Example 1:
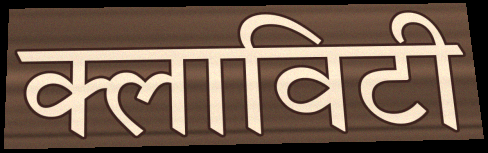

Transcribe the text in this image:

क्लाविटी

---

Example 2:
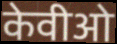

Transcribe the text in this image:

केवीओ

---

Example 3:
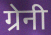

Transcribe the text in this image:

ग्रेनी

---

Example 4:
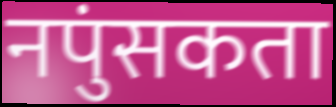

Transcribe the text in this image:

नपुंसकता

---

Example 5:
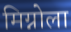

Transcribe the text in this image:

मिग्नोला